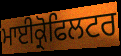
ਮਾਈਕ੍ਰੋਫਿਲਟਰ